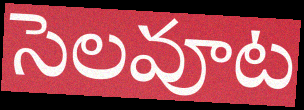
సెలవూట